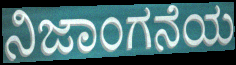
ನಿಜಾಂಗನೆಯ